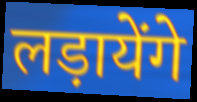
लड़ायेंगे